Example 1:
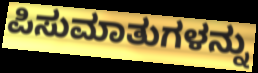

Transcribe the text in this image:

ಪಿಸುಮಾತುಗಳನ್ನು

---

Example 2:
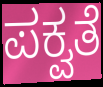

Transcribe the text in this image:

ಪಕ್ವತೆ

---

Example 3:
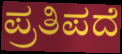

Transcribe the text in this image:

ಪ್ರತಿಪದೆ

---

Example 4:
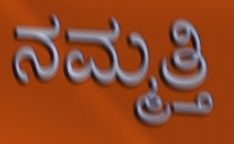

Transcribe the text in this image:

ನಮ್ಮತ್ತಿ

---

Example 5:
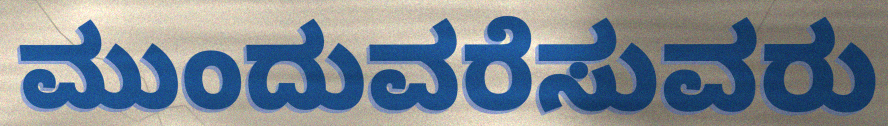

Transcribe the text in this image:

ಮುಂದುವರೆಸುವರು